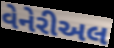
વેનેરીઅલ